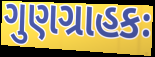
ગુણગ્રાહકઃ